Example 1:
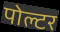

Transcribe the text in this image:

पोल्टर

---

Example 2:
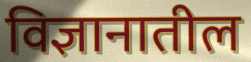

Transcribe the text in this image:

विज्ञानातील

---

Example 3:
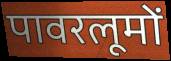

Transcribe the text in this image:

पावरलूमों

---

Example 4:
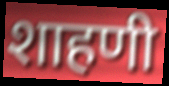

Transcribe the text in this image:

शाहणी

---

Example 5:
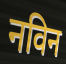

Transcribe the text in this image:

नविन